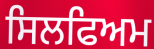
ਸਿਲਫਿਅਮ